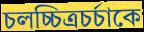
চলচ্চিত্রচর্চাকে